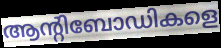
ആന്റിബോഡികളെ